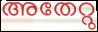
അതേറ്റു